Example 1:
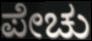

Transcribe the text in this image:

ಪೇಚು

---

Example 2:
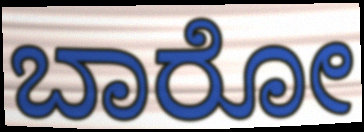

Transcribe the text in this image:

ಬಾರೋ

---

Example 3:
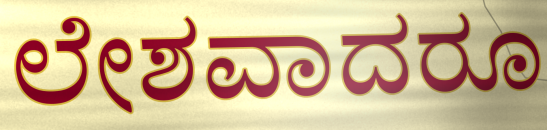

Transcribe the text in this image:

ಲೇಶವಾದರೂ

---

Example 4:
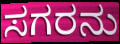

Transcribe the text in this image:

ಸಗರನು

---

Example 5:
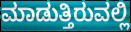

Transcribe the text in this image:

ಮಾಡುತ್ತಿರುವಲ್ಲಿ